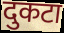
दुकटा